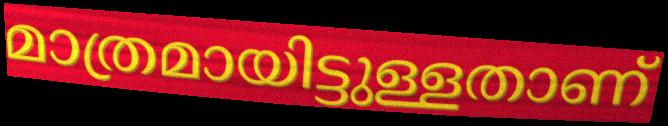
മാത്രമായിട്ടുള്ളതാണ്